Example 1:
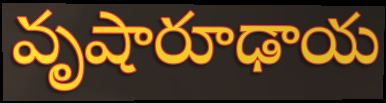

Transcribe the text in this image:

వృషారూఢాయ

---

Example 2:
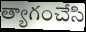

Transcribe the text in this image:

త్యాగంచేసి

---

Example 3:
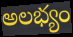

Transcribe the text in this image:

అలభ్యం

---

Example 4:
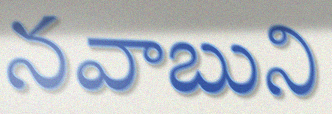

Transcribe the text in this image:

నవాబుని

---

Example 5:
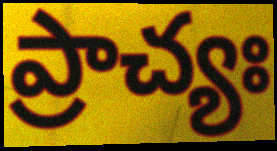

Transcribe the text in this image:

ప్రాచ్యః